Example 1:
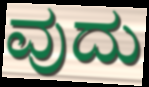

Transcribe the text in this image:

ವುದು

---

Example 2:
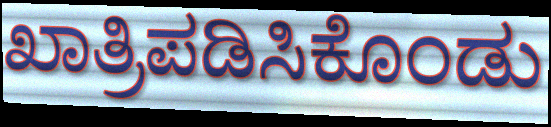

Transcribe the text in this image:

ಖಾತ್ರಿಪಡಿಸಿಕೊಂಡು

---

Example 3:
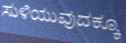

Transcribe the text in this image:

ಸುಳಿಯುವುದಕ್ಕೂ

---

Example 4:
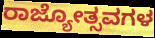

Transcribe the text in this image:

ರಾಜ್ಯೋತ್ಸವಗಳ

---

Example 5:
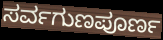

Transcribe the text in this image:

ಸರ್ವಗುಣಪೂರ್ಣ